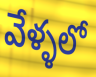
వేళ్ళలో